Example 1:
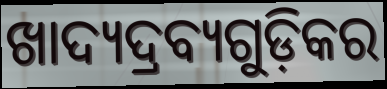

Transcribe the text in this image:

ଖାଦ୍ୟଦ୍ରବ୍ୟଗୁଡ଼ିକର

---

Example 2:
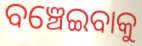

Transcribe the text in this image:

ବଞ୍ଚେଇବାକୁ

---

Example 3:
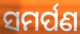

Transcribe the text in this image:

ସମର୍ପଣ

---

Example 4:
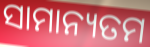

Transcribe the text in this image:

ସାମାନ୍ୟତମ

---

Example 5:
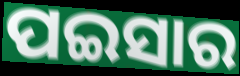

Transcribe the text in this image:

ପଇସାର